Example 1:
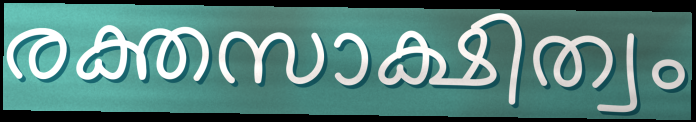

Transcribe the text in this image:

രക്തസാക്ഷിത്വം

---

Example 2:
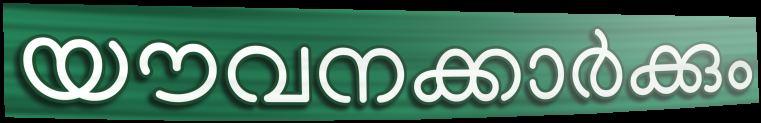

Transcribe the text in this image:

യൗവനക്കാർക്കും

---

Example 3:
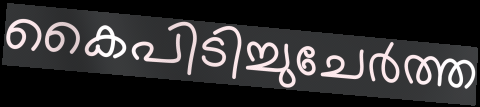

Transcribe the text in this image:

കൈപിടിച്ചുചേർത്ത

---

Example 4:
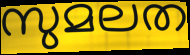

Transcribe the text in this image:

സുമലത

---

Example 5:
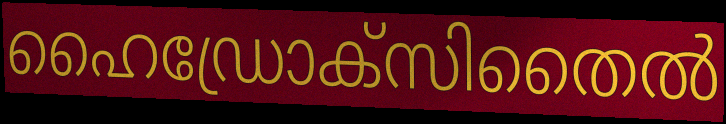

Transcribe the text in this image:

ഹൈഡ്രോക്സിതൈൽ